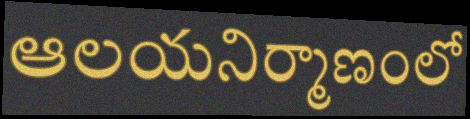
ఆలయనిర్మాణంలో